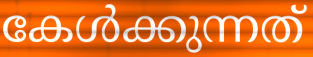
കേൾക്കുന്നത്